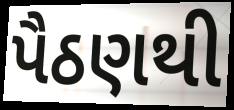
પૈઠણથી